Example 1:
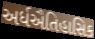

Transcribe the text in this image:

અર્ધઐતિહાસિક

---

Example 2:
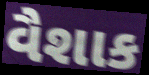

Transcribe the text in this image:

વૈશાક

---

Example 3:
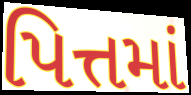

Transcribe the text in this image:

પિત્તમાં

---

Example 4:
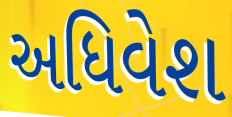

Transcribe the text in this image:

અધિવેશ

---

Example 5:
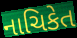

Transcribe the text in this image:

નાચિકેત